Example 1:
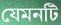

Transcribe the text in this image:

যেমনটি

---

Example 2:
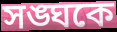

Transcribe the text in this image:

সঙ্ঘকে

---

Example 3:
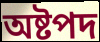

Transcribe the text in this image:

অষ্টপদ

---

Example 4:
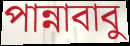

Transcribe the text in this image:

পান্নাবাবু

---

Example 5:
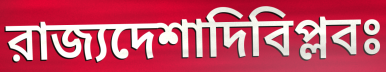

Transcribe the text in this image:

রাজ্যদেশাদিবিপ্লবঃ